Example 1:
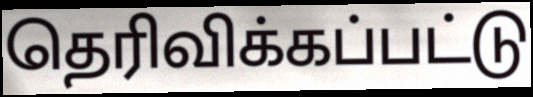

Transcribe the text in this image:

தெரிவிக்கப்பட்டு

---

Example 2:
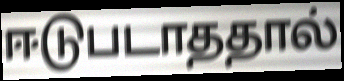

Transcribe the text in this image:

ஈடுபடாததால்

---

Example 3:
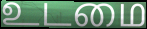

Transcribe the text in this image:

உடமை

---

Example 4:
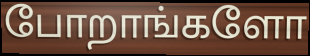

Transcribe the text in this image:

போறாங்களோ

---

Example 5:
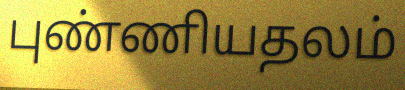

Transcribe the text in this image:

புண்ணியதலம்